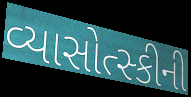
વ્યાસોત્સ્કીની